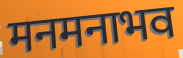
मनमनाभव